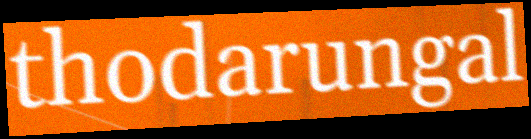
thodarungal